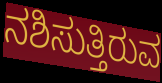
ನಶಿಸುತ್ತಿರುವ